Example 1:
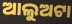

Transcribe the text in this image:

ଆଲୁଅଟା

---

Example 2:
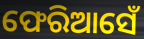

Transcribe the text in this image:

ଫେରିଆସେଁ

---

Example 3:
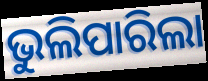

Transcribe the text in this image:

ଭୁଲିପାରିଲା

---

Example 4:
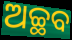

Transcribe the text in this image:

ଅଚ୍ଛବ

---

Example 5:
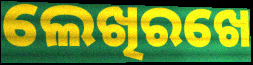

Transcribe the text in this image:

ଲେଖିରଖେ